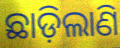
ଛାଡ଼ିଲାଣି